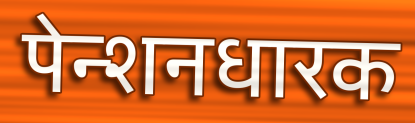
पेन्शनधारक